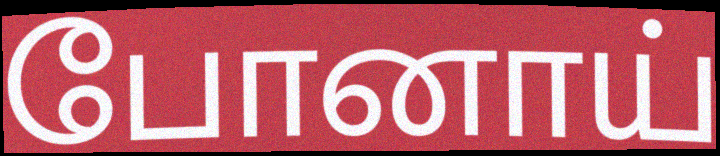
போனாய்